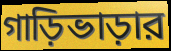
গাড়িভাড়ার